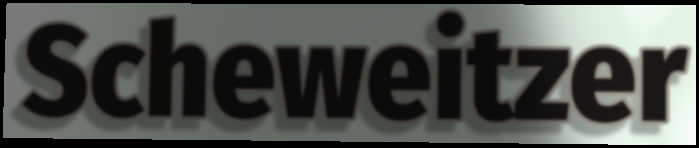
Scheweitzer